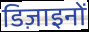
डिज़ाइनों